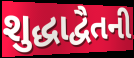
શુદ્ધાદ્વૈતની